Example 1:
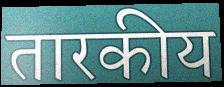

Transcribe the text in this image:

तारकीय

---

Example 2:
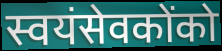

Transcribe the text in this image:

स्वयंसेवकोंको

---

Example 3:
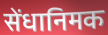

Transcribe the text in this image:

सेंधानिमक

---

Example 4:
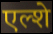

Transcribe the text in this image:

एल्शे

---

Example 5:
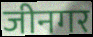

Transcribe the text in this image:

जीनगर